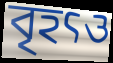
বৃহৎও